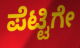
ಪೆಟ್ಟಿಗೇ